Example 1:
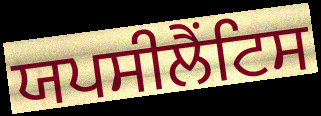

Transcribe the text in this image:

ਯਪਸੀਲੈਂਟਿਸ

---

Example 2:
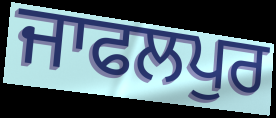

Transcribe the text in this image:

ਜਾਫਲਪੁਰ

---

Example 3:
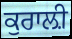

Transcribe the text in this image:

ਕੁਰਾਲ਼ੀ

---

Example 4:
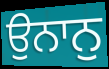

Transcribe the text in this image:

ਉਨਾਨੁ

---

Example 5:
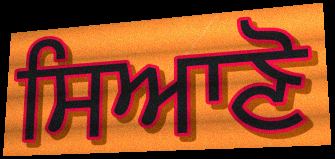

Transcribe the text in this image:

ਸਿਆਣੋ